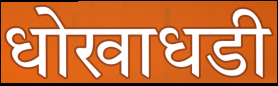
धोखाधडी